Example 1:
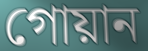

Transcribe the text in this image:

গোয়ান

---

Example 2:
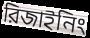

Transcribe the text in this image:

রিজাইনিং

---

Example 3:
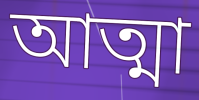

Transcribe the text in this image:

আত্মা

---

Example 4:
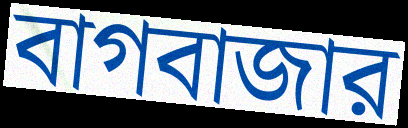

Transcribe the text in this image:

বাগবাজার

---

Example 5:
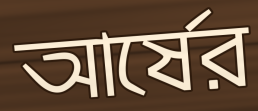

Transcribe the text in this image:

আর্ষের